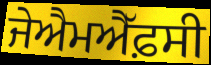
ਜੇਐਮਐੱਫ਼ਸੀ